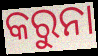
କରୁନା